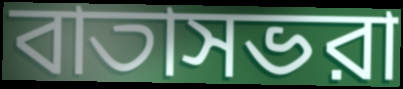
বাতাসভরা